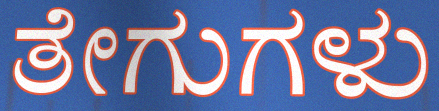
ತೇಗುಗಳು